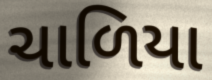
ચાળિયા